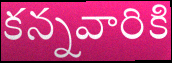
కన్నవారికి